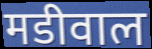
मडीवाल